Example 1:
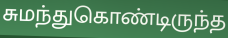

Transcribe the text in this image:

சுமந்துகொண்டிருந்த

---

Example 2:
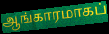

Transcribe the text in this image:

ஆங்காரமாகப்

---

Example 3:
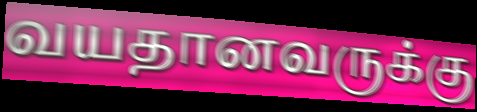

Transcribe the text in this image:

வயதானவருக்கு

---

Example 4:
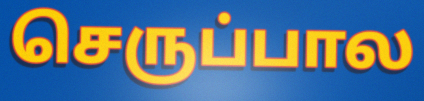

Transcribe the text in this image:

செருப்பால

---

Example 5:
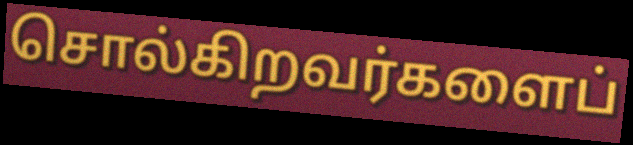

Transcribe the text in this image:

சொல்கிறவர்களைப்